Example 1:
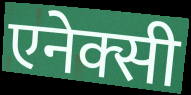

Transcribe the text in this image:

एनेक्‍सी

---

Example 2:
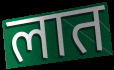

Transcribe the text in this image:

लात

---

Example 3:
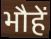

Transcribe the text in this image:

भौहें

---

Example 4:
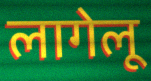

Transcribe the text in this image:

लागेलू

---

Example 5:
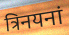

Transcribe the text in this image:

त्रिनयनां